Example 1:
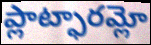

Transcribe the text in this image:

ప్లాట్ఫారమ్లో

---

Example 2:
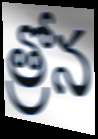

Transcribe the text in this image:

త్రోన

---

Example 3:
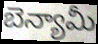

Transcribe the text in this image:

బెన్యామీ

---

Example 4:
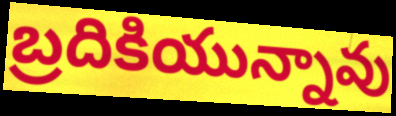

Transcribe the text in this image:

బ్రదికియున్నావు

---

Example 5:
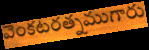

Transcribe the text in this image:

వెంకటరత్నముగారు